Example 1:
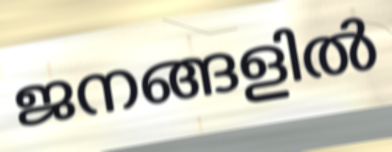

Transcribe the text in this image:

ജനങ്ങളിൽ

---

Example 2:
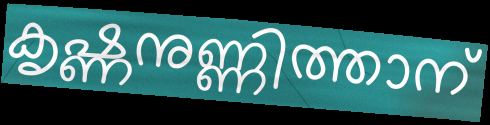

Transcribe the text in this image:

കൃഷ്ണനുണ്ണിത്താന്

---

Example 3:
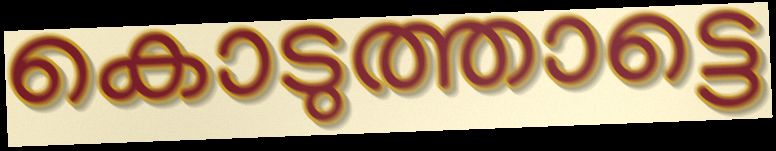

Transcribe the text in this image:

കൊടുത്താട്ടെ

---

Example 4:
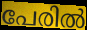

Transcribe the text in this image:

പേരിൽ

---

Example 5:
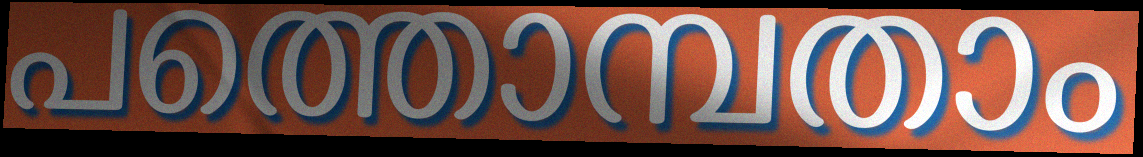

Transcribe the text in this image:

പത്തൊമ്പതാം